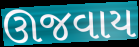
ઊજવાય